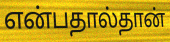
என்பதால்தான்